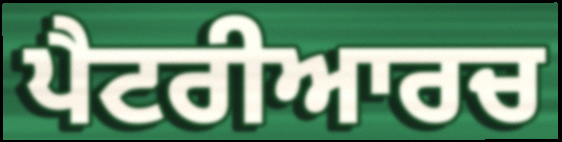
ਪੈਟਰੀਆਰਚ